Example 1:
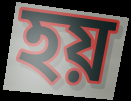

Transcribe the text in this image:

হয়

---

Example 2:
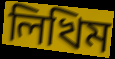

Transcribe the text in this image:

লিখিম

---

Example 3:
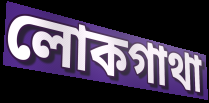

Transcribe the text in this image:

লোকগাথা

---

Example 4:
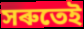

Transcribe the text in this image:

সৰুতেই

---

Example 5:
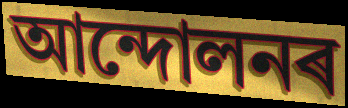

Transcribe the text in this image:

আন্দোলনৰ